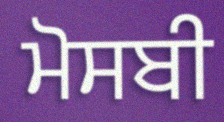
ਮੋਸਬੀ